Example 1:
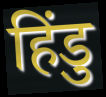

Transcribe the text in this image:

हिंडु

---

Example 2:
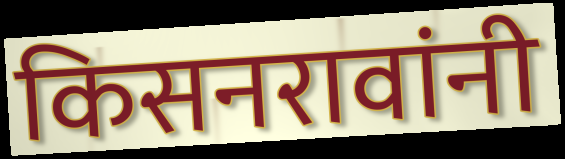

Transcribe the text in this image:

किसनरावांनी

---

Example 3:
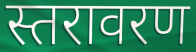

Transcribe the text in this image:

स्तरावरण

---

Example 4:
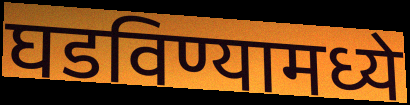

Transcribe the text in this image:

घडविण्यामध्ये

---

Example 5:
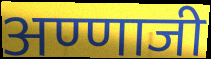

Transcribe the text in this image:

अण्णाजी